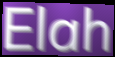
Elah